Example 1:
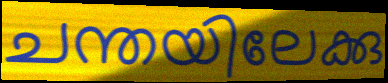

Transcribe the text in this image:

ചന്തയിലേക്കു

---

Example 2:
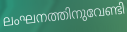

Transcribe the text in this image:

ലംഘനത്തിനുവേണ്ടി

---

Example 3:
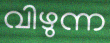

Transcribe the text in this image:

വിഴുന്ന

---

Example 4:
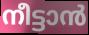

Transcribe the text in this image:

നീട്ടാൻ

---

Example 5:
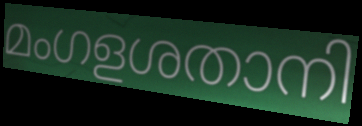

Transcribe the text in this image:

മംഗളശതാനി